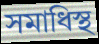
সমাধিস্থ